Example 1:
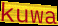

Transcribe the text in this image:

kuwa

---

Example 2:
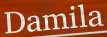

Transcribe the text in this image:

Damila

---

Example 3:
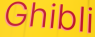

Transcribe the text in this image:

Ghibli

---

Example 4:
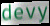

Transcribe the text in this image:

devy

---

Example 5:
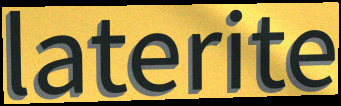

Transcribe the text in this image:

laterite